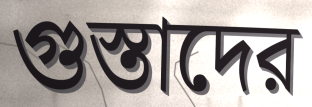
গুস্তাদের